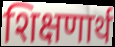
शिक्षणार्थ